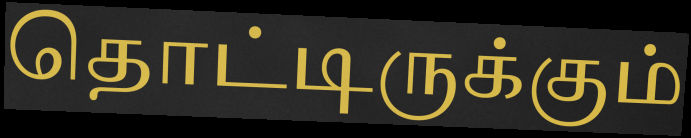
தொட்டிருக்கும்